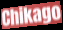
Chikago